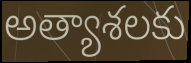
అత్యాశలకు